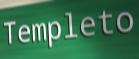
Templeto